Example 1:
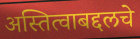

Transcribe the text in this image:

अस्तित्वाबद्दलचे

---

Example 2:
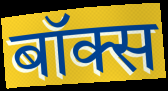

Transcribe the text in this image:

बॉक्‍स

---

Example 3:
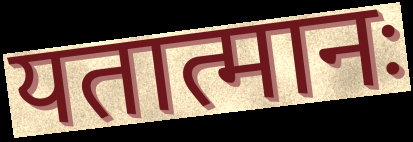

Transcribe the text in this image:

यतात्मानः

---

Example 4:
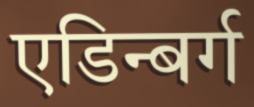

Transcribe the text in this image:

एडिन्बर्ग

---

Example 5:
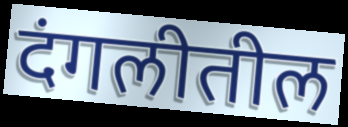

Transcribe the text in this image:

दंगलीतील